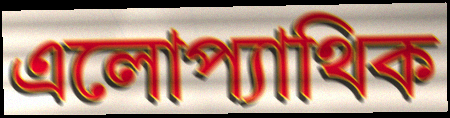
এলোপ্যাথিক